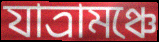
যাত্রামঞ্চে